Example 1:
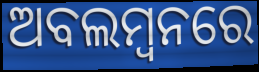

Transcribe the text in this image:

ଅବଲମ୍ବନରେ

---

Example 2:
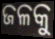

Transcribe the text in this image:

ଜଳକୁ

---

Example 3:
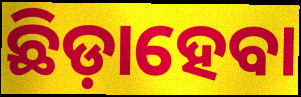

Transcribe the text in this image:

ଛିଡ଼ାହେବା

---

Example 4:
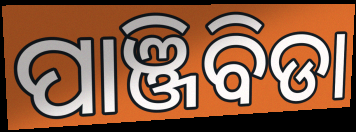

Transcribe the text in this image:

ପାଞ୍ଜିବିଡା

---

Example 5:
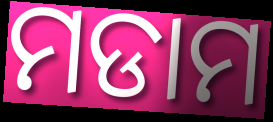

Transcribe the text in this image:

ମଡାମ